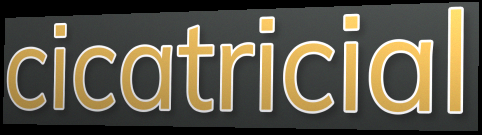
cicatricial